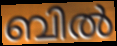
ബിൽ